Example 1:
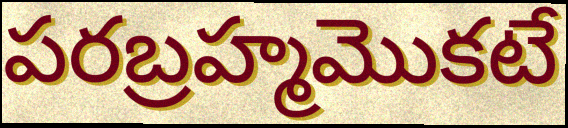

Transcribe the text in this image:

పరబ్రహ్మమొకటే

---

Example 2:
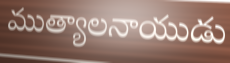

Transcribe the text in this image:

ముత్యాలనాయుడు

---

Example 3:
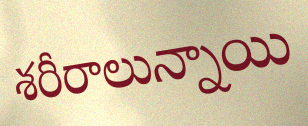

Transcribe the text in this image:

శరీరాలున్నాయి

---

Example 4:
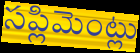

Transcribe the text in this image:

సప్లిమెంట్లు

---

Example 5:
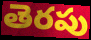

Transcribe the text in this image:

తెరపు